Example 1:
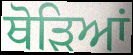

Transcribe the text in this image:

ਥੋੜਿਆਂ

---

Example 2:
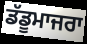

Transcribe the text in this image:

ਡੱਡੂਮਾਜਰਾ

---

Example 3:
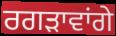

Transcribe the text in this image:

ਰਗੜਾਵਾਂਗੇ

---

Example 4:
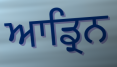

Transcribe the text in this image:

ਆਡ੍ਰਿਨ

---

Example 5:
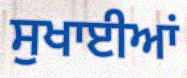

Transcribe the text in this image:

ਸੁਖਾਈਆਂ